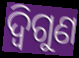
ଦ୍ୱିଗୁଣ